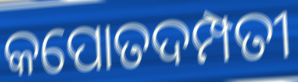
କପୋତଦମ୍ପତୀ